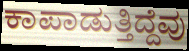
ಕಾಪಾಡುತ್ತಿದ್ದೆವು